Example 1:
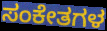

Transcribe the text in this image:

ಸಂಕೇತಗಳ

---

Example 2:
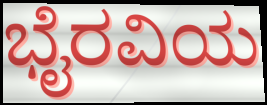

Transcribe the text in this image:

ಭೈರವಿಯ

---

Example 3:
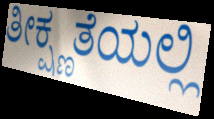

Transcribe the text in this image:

ತೀಕ್ಷ್ಣತೆಯಲ್ಲಿ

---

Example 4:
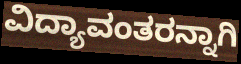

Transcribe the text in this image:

ವಿದ್ಯಾವಂತರನ್ನಾಗಿ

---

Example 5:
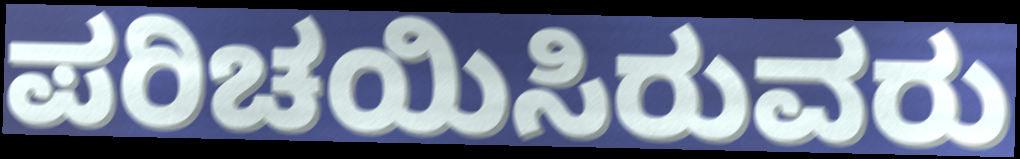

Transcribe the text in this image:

ಪರಿಚಯಿಸಿರುವರು